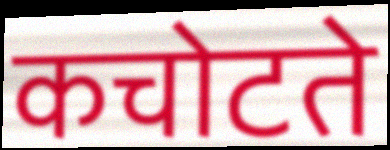
कचोटते